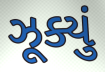
ઝૂક્યું